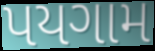
પયગામ